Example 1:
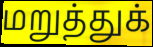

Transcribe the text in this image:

மறுத்துக்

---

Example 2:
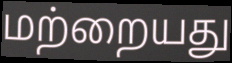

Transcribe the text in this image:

மற்றையது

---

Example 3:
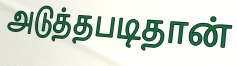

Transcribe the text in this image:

அடுத்தபடிதான்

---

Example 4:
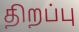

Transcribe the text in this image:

திறப்பு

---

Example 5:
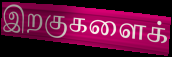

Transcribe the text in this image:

இறகுகளைக்